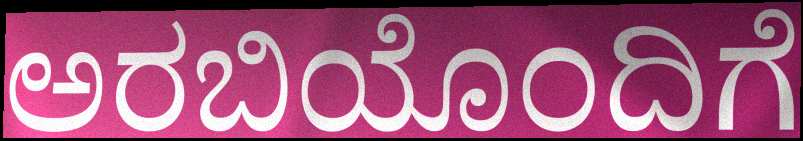
ಅರಬಿಯೊಂದಿಗೆ